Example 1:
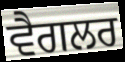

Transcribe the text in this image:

ਵੈਗਲਰ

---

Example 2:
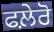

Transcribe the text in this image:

ਫਲ਼ੇਰੋ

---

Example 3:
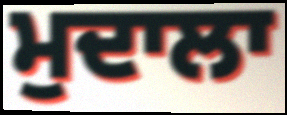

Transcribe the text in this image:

ਮੁਦਾਲਾ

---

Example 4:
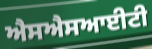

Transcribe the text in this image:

ਐਸਐਸਆਈਟੀ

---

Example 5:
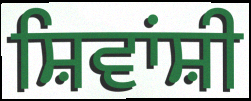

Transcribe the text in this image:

ਸ਼ਿਵਾਂਸ਼ੀ